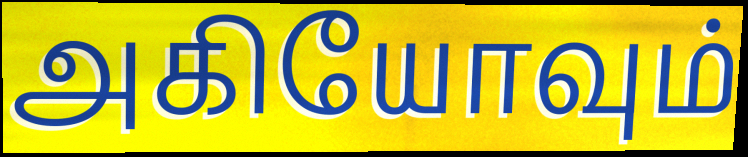
அகியோவும்